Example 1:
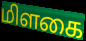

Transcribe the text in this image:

மிளகை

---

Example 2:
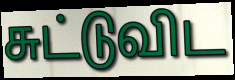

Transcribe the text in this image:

சுட்டுவிட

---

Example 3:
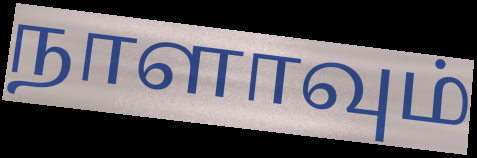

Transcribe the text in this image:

நாளாவும்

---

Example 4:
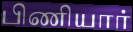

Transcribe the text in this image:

பிணியார்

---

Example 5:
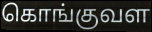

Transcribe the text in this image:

கொங்குவள